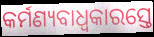
କର୍ମଣ୍ୟବାଧ୍ୱକାରସ୍ତେ